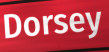
Dorsey